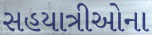
સહયાત્રીઓના